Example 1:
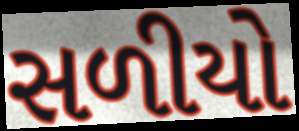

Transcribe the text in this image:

સળીયો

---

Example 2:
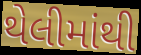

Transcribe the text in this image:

થેલીમાંથી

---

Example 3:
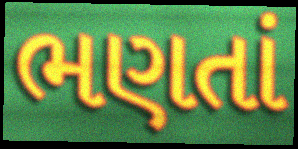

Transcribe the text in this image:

ભણતાં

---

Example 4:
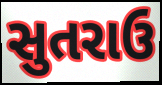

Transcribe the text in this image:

સુતરાઉ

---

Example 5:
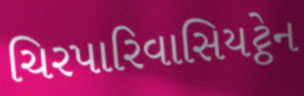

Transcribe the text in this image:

ચિરપારિવાસિયટ્ઠેન